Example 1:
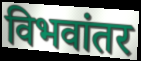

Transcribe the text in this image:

विभवांतर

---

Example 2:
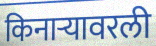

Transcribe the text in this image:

किनाऱ्यावरली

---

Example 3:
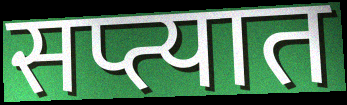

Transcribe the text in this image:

सप्त्यात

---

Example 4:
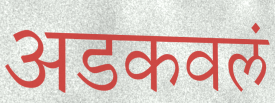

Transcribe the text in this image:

अडकवलं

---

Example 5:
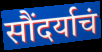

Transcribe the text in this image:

सौंदर्याचं